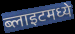
ब्लाइटमध्ये